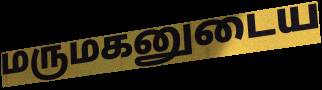
மருமகனுடைய